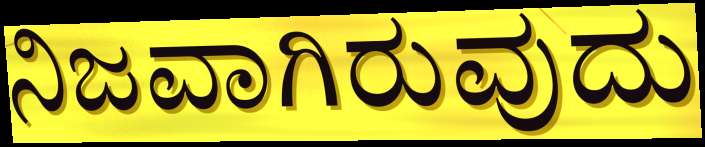
ನಿಜವಾಗಿರುವುದು